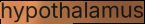
hypothalamus